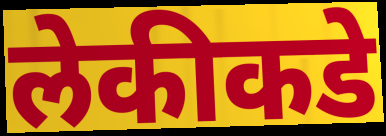
लेकीकडे